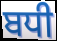
ਬਧੀ